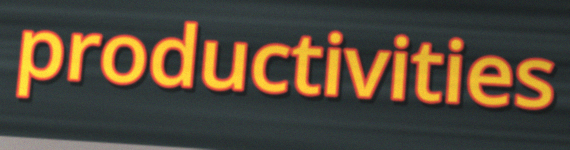
productivities